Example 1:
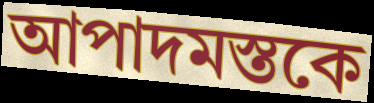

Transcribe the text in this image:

আপাদমস্তকে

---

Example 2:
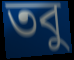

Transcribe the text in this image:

তবু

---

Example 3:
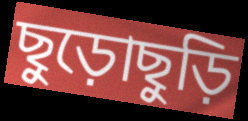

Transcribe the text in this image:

ছুড়োছুড়ি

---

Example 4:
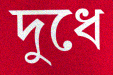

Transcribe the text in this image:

দুধে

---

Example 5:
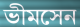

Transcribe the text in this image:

ভীমসেন